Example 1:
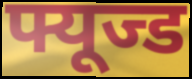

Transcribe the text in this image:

फ्यूज्ड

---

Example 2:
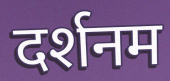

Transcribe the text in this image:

दर्शनम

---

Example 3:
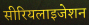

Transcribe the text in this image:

सीरियलाइजेशन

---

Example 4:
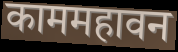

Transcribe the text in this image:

काममहावन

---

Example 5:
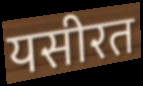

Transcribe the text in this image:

यसीरत